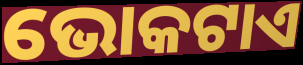
ଭୋକଟାଏ